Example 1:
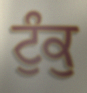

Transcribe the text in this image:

ਟੁੰਕੁ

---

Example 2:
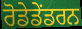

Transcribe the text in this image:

ਰੋਡੇਡੇਂਡਰਨ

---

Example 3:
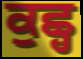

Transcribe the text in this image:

ਕੁਛ੍ਹ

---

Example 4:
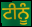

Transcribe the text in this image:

ਟੀਨੂੰ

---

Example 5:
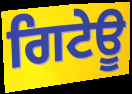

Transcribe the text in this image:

ਗਿਟੇਊ